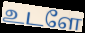
உடளே